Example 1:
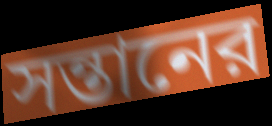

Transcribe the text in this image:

সন্তানের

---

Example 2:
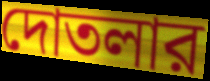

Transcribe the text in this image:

দোতলার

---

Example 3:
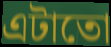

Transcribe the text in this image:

এটাতো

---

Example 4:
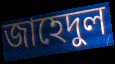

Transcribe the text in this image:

জাহেদুল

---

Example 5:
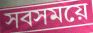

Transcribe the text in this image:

সবসময়ে